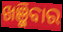
ଖଞ୍ଜିବାର